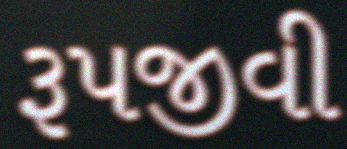
રૂપજીવી